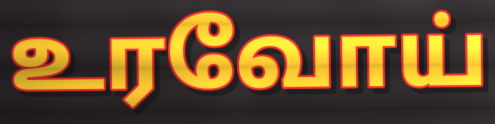
உரவோய்